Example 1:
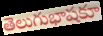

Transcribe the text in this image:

తెలుగుభాషకూ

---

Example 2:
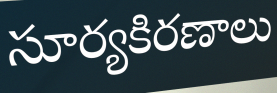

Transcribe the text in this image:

సూర్యకిరణాలు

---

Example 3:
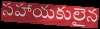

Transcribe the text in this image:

సహాయకులైన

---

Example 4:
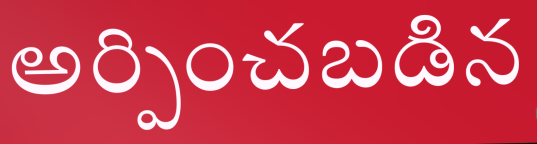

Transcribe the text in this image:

అర్పించబడిన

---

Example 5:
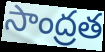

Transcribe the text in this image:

సాంద్రత